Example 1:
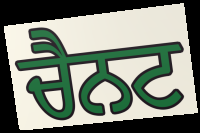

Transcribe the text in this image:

ਚੈਨਟ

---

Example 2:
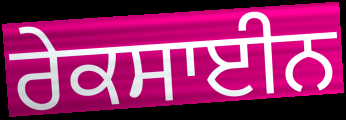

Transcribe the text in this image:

ਰੇਕਸਾਈਨ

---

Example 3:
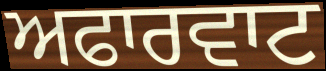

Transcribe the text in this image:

ਅਫਾਰਵਾਟ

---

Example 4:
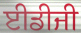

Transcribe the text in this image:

ਈਡੀਜੀ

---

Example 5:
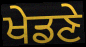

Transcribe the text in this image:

ਖੇਡਣੇ